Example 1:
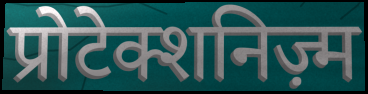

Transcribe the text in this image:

प्रोटेक्शनिज़्म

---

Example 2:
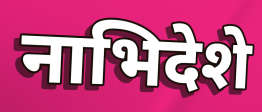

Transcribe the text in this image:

नाभिदेशे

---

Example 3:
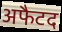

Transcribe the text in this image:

अफैटद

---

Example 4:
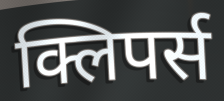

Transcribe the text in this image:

क्लिपर्स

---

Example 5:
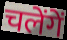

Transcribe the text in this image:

चलेंगें